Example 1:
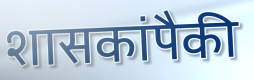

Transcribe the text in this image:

शासकांपैकी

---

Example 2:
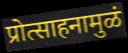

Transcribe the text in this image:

प्रोत्साहनामुळं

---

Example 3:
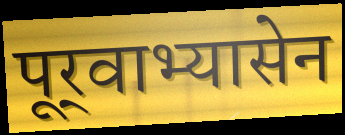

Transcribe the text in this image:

पूर्वाभ्यासेन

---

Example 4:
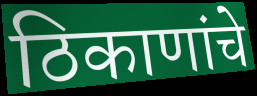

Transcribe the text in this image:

ठिकाणांचे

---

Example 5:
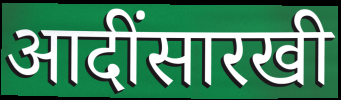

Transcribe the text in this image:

आदींसारखी